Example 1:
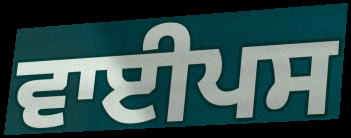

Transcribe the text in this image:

ਵਾਈਪਸ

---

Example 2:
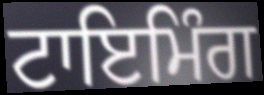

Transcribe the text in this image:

ਟਾਇਮਿੰਗ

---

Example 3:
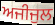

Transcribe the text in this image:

ਅਜੀਜੁਲ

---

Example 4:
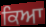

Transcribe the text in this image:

ਕਿਆ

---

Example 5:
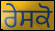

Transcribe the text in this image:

ਰੇਸਕੋ